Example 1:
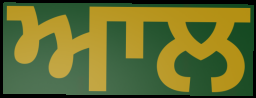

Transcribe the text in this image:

ਆਲ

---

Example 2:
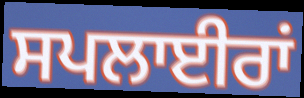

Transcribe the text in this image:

ਸਪਲਾਈਰਾਂ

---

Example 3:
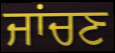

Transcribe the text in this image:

ਜਾਂਚਣ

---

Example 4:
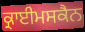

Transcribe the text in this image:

ਕ੍ਰਾਈਮਸਕੈਨ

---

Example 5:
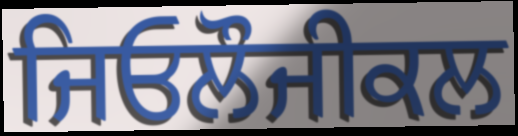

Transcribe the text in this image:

ਜਿਓਲੌਜੀਕਲ